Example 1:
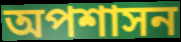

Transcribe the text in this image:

অপশাসন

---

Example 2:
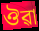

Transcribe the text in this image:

ঔৱা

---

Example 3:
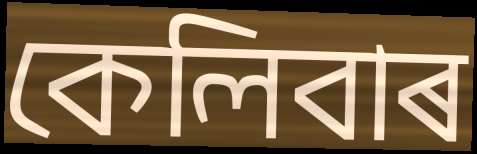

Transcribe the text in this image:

কেলিবাৰ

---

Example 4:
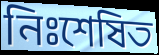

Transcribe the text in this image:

নিঃশেষিত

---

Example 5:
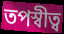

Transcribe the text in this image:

তপস্বীত্ব